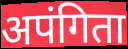
अपंगिता